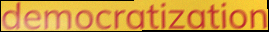
democratization